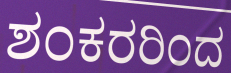
ಶಂಕರರಿಂದ